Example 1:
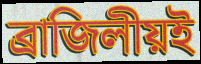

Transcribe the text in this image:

ব্রাজিলীয়ই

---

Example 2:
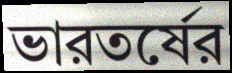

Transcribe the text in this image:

ভারতর্ষের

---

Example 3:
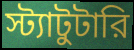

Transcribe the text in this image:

স্ট্যাটুটারি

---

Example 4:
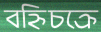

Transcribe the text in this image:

বহ্নিচক্রে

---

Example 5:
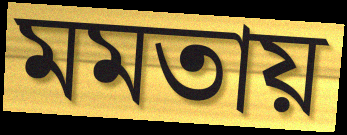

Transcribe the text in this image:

মমতায়